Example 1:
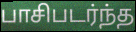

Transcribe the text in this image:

பாசிபடர்ந்த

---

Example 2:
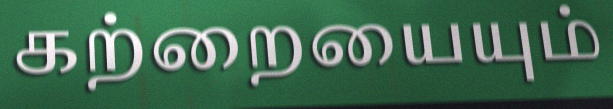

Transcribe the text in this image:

கற்றையையும்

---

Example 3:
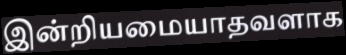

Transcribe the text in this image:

இன்றியமையாதவளாக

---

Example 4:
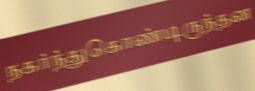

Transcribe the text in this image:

நகர்ந்துகொண்டிருந்தன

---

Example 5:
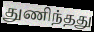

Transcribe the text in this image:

துணிந்தது